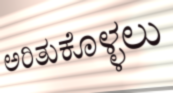
ಅರಿತುಕೊಳ್ಳಲು